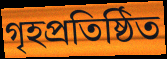
গৃহপ্রতিষ্ঠিত